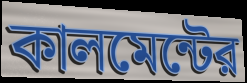
কালমেন্টের